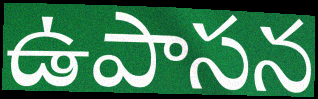
ఉపాసన